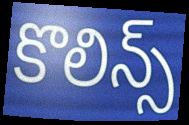
కొలిన్స్